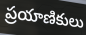
ప్రయాణికులు